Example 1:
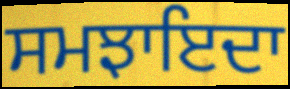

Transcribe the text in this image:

ਸਮਝਾਇਦਾ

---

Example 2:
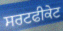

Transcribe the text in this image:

ਸਰਟਫੀਕੇਟ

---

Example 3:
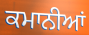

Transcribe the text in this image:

ਕਮਾਨੀਆਂ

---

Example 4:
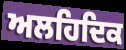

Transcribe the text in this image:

ਅਲਹਿਦਿਕ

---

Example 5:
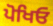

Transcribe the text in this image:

ਪੋਖਿਓ